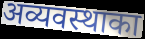
अव्यवस्थाका